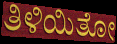
ತಿಳಿಯಿತೋ